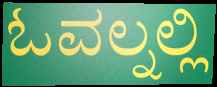
ಓವಲ್ನಲ್ಲಿ